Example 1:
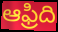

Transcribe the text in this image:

ఆఫ్రిది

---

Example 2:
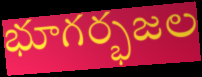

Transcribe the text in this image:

భూగర్భజల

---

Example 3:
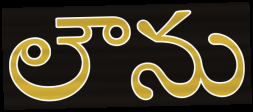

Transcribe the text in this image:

లౌను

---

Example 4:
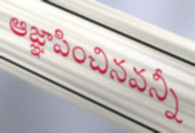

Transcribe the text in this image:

ఆజ్ఞాపించినవన్నీ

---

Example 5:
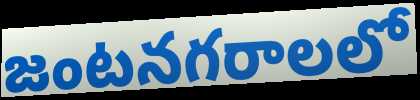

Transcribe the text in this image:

జంటనగరాలలో